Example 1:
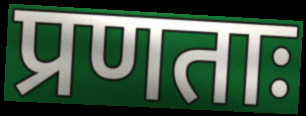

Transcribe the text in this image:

प्रणताः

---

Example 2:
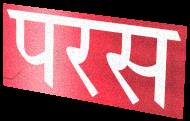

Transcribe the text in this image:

परस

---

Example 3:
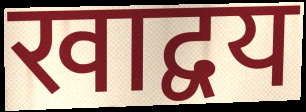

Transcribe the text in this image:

खाद्वय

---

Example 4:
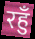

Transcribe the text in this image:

रहुँ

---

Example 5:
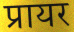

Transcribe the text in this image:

प्रायर